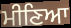
ਮੀਣਿਆ